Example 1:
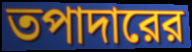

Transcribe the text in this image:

তপাদারের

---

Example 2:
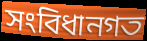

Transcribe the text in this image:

সংবিধানগত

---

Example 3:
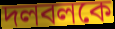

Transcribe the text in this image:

দলবলকে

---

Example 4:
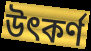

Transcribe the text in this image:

উৎকর্ণ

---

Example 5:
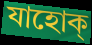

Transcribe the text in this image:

যাহোক্